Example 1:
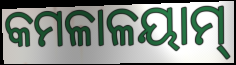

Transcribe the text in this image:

କମଳାଳୟାମ୍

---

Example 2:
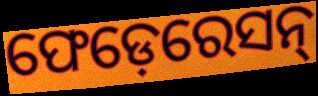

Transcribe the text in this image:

ଫେଡ଼େରେସନ୍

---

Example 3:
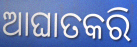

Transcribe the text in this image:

ଆଘାତକରି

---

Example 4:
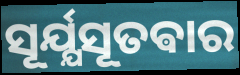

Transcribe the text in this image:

ସୂର୍ଯ୍ଯସୂତଵାର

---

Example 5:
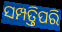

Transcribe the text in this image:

ସମ୍ପତ୍ତିପରି